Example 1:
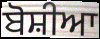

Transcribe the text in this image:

ਬੋਸ਼ੀਆ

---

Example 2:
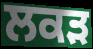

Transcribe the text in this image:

ਲਕੜ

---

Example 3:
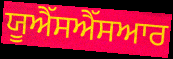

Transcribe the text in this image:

ਯੂਐੱਸਐੱਸਆਰ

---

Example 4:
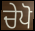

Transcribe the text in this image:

ਚੇਪੋ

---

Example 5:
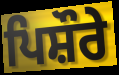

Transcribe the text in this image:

ਪਿਸ਼ੌਰੇ